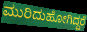
ಮುರಿದುಹೋಗಿದ್ದರೆ